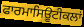
ਫਾਰਮਾਸਿਊਟੀਕਲਾਂ